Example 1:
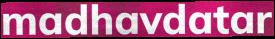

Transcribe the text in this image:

madhavdatar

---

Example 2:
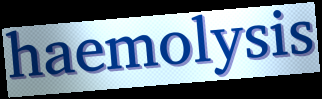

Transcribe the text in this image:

haemolysis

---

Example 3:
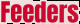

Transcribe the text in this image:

Feeders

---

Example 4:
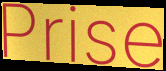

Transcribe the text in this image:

Prise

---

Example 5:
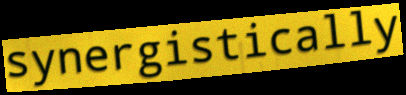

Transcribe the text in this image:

synergistically